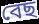
বেছ